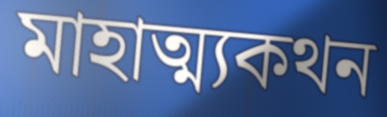
মাহাত্ম্যকথন